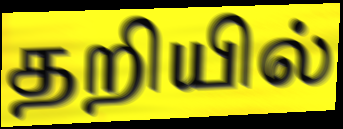
தறியில்